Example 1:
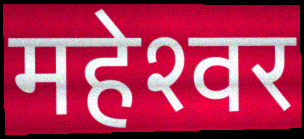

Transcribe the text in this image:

महेश्वर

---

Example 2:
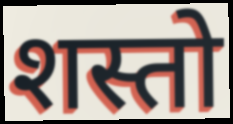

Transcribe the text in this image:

शस्तो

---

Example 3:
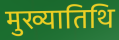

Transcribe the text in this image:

मुख्यातिथि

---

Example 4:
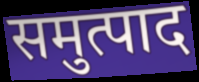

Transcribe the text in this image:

समुत्पाद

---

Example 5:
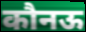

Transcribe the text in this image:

कौनऊ